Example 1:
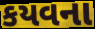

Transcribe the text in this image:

કયવના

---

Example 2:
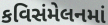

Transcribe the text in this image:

કવિસંમેલનમાં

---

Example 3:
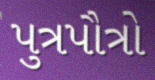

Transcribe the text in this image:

પુત્રપૌત્રો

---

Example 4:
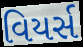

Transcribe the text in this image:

વિયર્સ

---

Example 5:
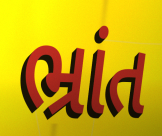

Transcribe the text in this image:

ભ્રાંત